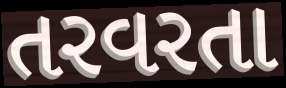
તરવરતા